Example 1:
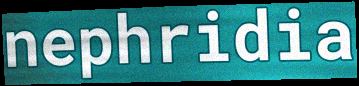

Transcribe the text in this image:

nephridia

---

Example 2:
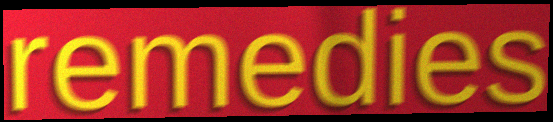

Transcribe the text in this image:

remedies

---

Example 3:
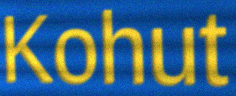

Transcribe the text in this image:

Kohut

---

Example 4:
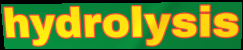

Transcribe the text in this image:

hydrolysis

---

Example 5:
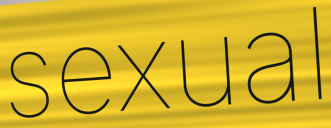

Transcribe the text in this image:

sexual